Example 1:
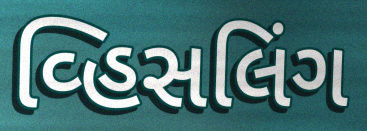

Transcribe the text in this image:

વ્હિસલિંગ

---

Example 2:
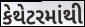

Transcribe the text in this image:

કેથેટરમાંથી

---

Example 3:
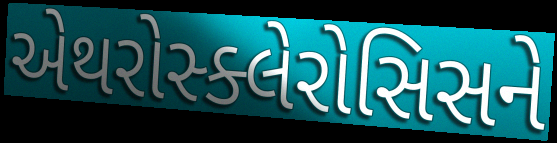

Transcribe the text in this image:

એથરોસ્ક્લેરોસિસને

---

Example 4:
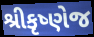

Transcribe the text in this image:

શ્રીકૃષ્ણેજ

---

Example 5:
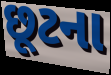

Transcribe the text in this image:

છૂટના